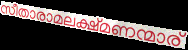
സീതാരാമലക്ഷ്മണന്മാര്